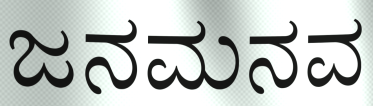
ಜನಮನವ